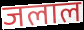
जलाल